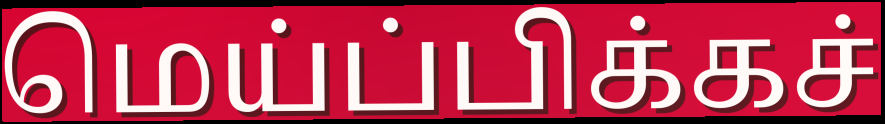
மெய்ப்பிக்கச்